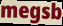
megsb